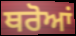
ਥਰੋਆਂ